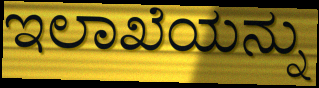
ಇಲಾಖೆಯನ್ನು